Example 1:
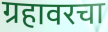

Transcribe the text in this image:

ग्रहावरचा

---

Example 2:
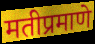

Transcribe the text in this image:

मतीप्रमाणे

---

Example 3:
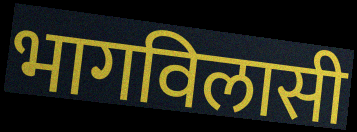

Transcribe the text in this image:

भागविलासी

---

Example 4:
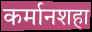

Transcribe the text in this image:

कर्मानशहा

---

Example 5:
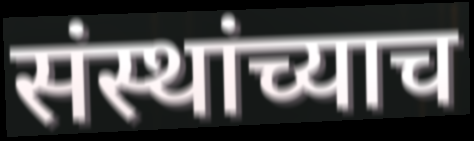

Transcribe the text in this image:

संस्थांच्याच